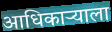
आधिकाऱ्याला